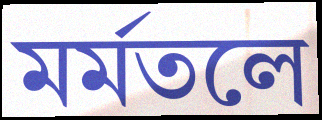
মর্মতলে